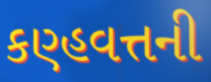
કણ્હવત્તની